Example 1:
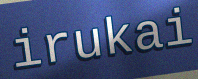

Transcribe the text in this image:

irukai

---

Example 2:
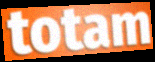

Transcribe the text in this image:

totam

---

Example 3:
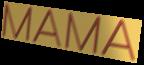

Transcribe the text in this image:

MAMA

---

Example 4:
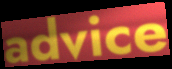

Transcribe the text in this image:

advice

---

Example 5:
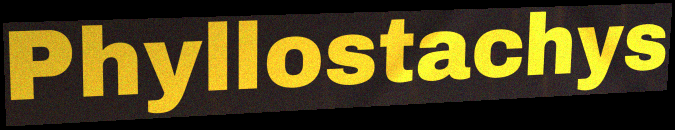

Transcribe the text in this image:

Phyllostachys